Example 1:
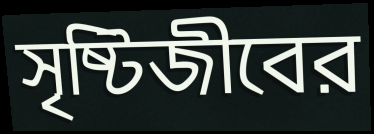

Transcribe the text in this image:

সৃষ্টিজীবের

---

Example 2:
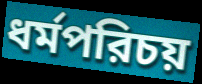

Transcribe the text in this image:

ধর্মপরিচয়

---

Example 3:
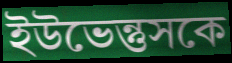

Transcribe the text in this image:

ইউভেন্তুসকে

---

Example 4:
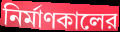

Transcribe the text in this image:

নির্মাণকালের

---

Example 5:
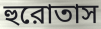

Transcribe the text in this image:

হুরোতাস